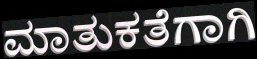
ಮಾತುಕತೆಗಾಗಿ